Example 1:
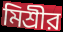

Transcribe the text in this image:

মিশ্রীর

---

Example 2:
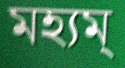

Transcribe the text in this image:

মহ্যম্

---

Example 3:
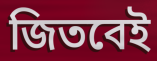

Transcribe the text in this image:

জিতবেই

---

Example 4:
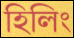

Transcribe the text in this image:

হিলিং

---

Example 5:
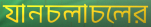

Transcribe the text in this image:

যানচলাচলের